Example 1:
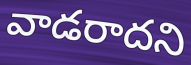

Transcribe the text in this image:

వాడరాదని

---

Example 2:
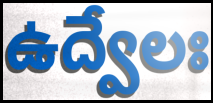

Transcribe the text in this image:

ఉద్వేలః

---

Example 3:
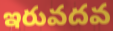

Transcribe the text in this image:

ఇరువదవ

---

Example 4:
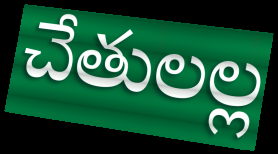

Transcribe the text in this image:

చేతులల్ల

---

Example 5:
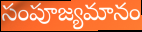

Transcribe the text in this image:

సంపూజ్యమానం